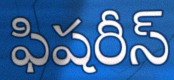
ఫిషరీస్